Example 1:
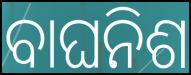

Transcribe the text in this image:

ବାଘନିଶ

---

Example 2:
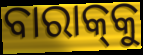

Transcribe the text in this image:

ବାରାକ୍‌କୁ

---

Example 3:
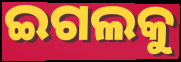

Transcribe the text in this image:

ଇଗଲକୁ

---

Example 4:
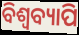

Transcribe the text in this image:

ବିଶ୍ବବ୍ୟାପି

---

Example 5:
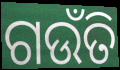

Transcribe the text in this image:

ଗଉଁତି